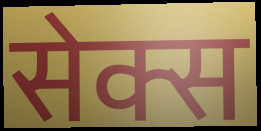
सेक्स